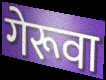
गेरूवा